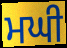
ਮਘੀ